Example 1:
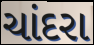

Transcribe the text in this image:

ચાંદરા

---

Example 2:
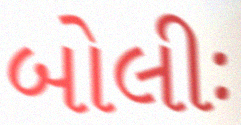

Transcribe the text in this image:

બોલીઃ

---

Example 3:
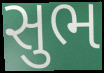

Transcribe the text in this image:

સુભ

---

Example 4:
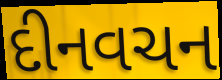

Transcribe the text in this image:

દીનવચન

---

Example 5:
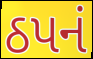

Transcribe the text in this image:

ઠપનં